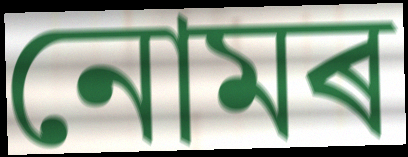
নোমৰ